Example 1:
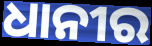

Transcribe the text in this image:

ଧାନୀର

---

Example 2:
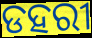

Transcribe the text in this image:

ଡହରୀ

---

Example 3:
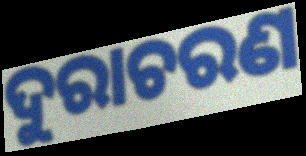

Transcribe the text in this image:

ଦୁରାଚରଣ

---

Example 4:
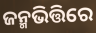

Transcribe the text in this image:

ଜନ୍ମଭିତ୍ତିରେ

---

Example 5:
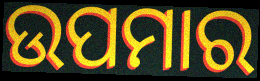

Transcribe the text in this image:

ଉପମାର